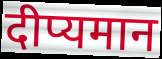
दीप्यमान